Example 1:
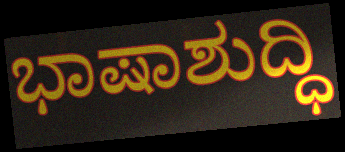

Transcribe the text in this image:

ಭಾಷಾಶುದ್ಧಿ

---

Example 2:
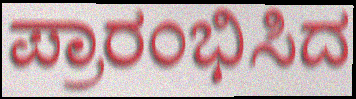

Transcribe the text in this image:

ಪ್ರಾರಂಭಿಸಿದ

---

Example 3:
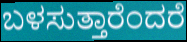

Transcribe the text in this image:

ಬಳಸುತ್ತಾರೆಂದರೆ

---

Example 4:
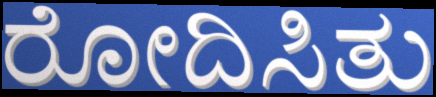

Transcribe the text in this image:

ರೋದಿಸಿತು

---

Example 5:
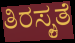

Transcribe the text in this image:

ತಿರಸ್ಕೃತೆ